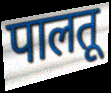
पालतू